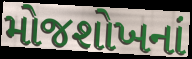
મોજશોખનાં